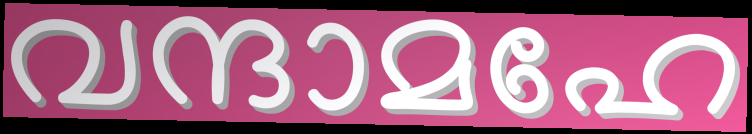
വന്ദാമഹേ